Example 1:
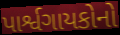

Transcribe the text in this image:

પાર્શ્વગાયકોનો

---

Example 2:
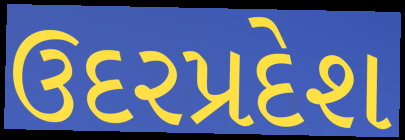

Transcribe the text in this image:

ઉદરપ્રદેશ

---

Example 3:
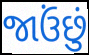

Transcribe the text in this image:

જાઉંછું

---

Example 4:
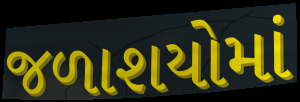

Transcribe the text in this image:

જળાશયોમાં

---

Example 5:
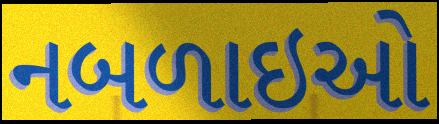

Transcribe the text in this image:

નબળાઇઓ